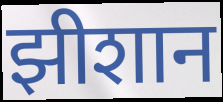
झीशान